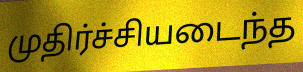
முதிர்ச்சியடைந்த